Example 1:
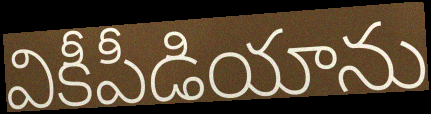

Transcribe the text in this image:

వికీపీడియాను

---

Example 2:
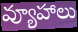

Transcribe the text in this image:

వ్యూహాలు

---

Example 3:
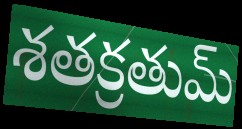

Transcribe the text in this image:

శతక్రతుమ్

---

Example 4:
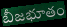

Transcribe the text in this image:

బీజభూతం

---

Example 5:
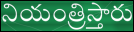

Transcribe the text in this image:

నియంత్రిస్తారు